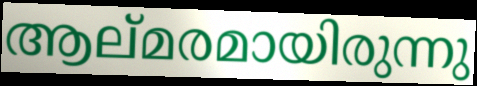
ആല്മരമായിരുന്നു